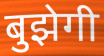
बुझेगी